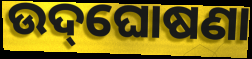
ଉଦ୍‌ଘୋଷଣା